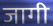
जागी